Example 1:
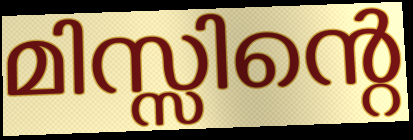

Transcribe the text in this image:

മിസ്സിന്റെ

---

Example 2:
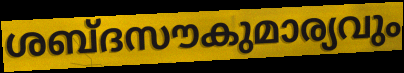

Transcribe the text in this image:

ശബ്ദസൗകുമാര്യവും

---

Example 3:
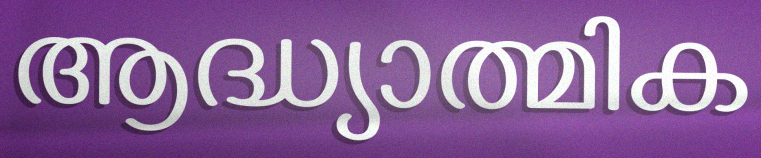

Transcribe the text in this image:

ആദ്ധ്യാത്മിക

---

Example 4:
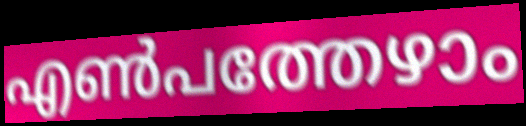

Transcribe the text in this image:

എൺപത്തേഴാം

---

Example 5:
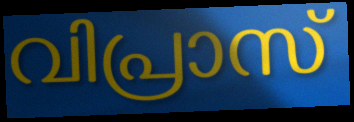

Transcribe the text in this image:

വിപ്രാസ്